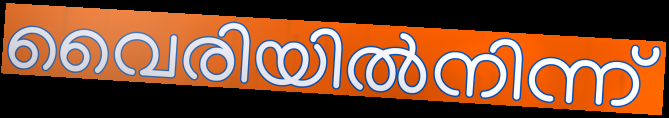
വൈരിയിൽനിന്ന്